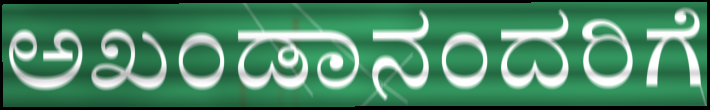
ಅಖಂಡಾನಂದರಿಗೆ